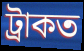
ট্ৰাকত